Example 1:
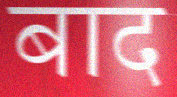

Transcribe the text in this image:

बाद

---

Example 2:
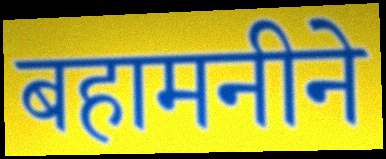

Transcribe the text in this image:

बहामनीने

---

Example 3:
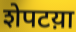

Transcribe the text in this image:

शेपटय़ा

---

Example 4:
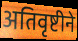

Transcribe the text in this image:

अतिवृष्टीने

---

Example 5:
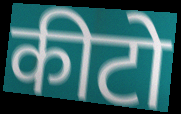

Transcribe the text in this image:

कीटो